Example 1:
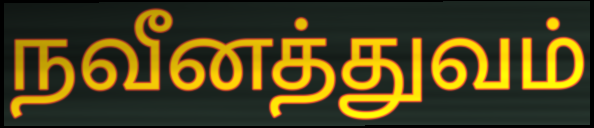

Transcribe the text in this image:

நவீனத்துவம்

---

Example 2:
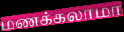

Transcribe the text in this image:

மணக்கலாமா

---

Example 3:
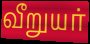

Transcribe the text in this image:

வீறுயர்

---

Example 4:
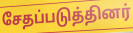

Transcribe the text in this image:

சேதப்படுத்தினர்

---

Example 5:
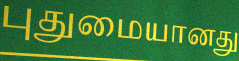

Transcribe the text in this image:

புதுமையானது